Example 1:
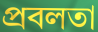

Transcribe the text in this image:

প্ৰবলতা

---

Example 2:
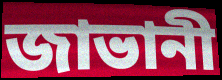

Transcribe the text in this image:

জাভানী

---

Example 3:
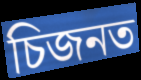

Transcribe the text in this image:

চিজনত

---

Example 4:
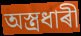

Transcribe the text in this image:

অস্ত্ৰধাৰী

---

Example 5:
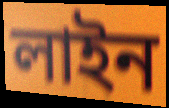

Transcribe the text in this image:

লাইন